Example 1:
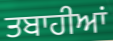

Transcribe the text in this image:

ਤਬਾਹੀਆਂ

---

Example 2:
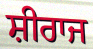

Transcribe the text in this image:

ਸ਼ੀਰਾਜ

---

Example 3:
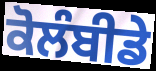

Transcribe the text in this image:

ਕੋਲੰਬੀਡੇ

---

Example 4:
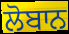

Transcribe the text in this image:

ਲੋਬਾਨ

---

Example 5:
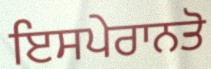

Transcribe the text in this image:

ਇਸਪੇਰਾਨਤੋ